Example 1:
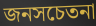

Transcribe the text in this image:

জনসচেতনা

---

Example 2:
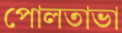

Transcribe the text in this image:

পোলতাভা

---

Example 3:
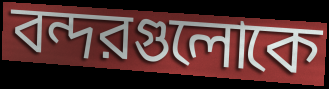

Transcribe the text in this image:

বন্দরগুলোকে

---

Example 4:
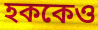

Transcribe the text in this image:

হককেও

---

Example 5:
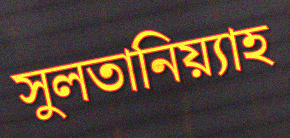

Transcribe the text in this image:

সুলতানিয়্যাহ